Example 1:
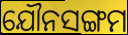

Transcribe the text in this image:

ଯୌନସଙ୍ଗମ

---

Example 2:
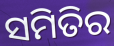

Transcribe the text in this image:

ସମିତିର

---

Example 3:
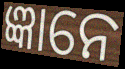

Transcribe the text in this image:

ଜ୍ଞାନେ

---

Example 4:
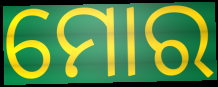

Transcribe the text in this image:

ମୋର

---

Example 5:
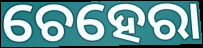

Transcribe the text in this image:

ଚେହେରା